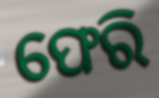
ଫେରି